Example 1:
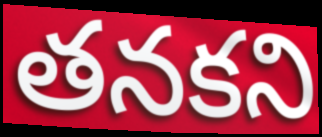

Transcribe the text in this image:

తనకని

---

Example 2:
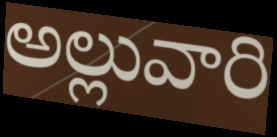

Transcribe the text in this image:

అల్లువారి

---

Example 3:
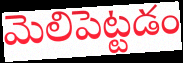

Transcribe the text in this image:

మెలిపెట్టడం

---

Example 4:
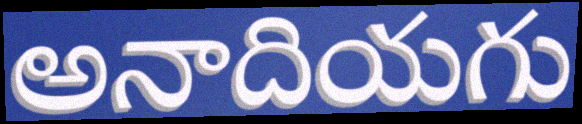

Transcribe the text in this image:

అనాదియగు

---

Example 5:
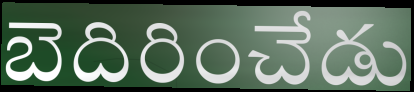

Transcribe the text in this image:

బెదిరించేడు